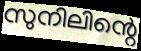
സുനിലിന്റെ